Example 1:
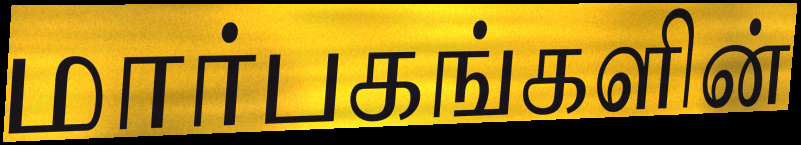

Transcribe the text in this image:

மார்பகங்களின்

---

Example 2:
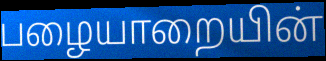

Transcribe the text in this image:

பழையாறையின்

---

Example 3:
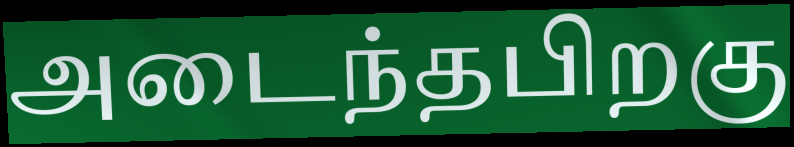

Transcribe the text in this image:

அடைந்தபிறகு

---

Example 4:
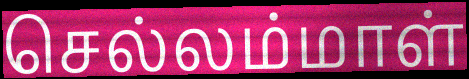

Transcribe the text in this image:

செல்லம்மாள்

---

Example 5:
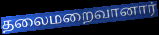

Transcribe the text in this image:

தலைமறைவானார்